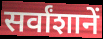
सर्वांशानें